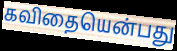
கவிதையென்பது